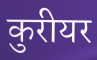
कुरीयर